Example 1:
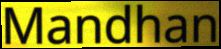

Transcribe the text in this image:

Mandhan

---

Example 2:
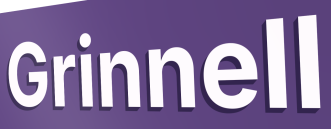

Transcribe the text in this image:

Grinnell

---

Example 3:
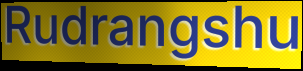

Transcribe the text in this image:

Rudrangshu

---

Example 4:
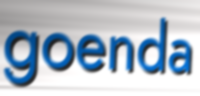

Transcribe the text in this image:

goenda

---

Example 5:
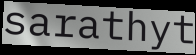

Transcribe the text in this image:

sarathyt